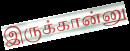
இருக்கான்னு